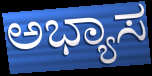
ಅಭ್ಯಾಸ